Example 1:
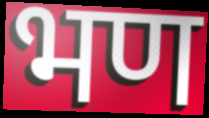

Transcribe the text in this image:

भण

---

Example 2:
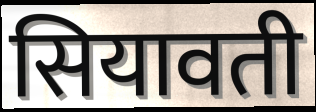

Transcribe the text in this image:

सियावती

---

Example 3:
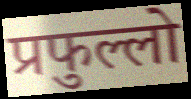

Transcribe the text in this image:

प्रफुल्लो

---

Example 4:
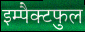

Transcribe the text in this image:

इम्पैक्टफुल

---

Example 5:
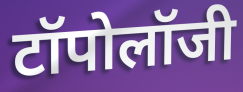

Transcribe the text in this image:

टॉपोलॉजी